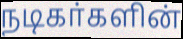
நடிகர்களின்